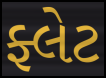
ફ્લેટ